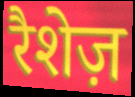
रैशेज़